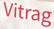
Vitrag